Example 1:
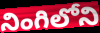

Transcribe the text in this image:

నింగిలోని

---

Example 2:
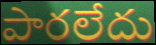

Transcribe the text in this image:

పారలేదు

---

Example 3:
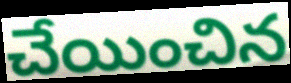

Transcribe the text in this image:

చేయించిన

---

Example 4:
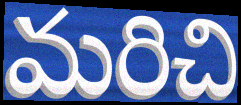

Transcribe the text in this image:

మరిచి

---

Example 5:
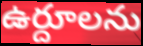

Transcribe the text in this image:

ఉర్దూలను